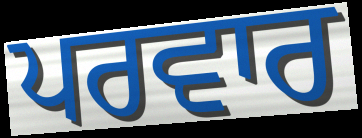
ਪਰਵਾਰ